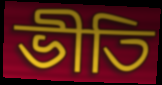
ভীতি